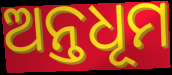
ଅନ୍ତଧୂମ